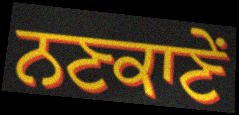
ਨਣਕਾਣੇਂ